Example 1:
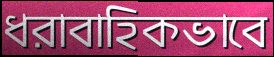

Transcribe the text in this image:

ধরাবাহিকভাবে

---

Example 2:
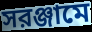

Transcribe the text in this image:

সরঞ্জামে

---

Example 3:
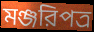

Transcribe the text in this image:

মঞ্জরিপত্র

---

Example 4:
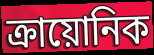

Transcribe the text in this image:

ক্রায়োনিক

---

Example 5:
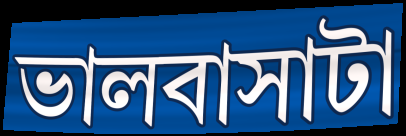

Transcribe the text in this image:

ভালবাসাটা